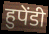
हुपेंडी